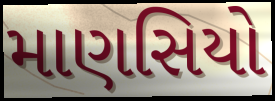
માણસિયો